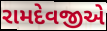
રામદેવજીએ